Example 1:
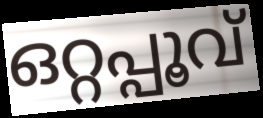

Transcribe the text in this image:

ഒറ്റപ്പൂവ്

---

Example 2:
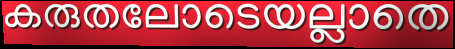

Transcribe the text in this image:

കരുതലോടെയല്ലാതെ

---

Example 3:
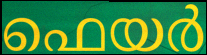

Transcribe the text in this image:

ഫെയർ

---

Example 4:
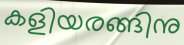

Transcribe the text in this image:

കളിയരങ്ങിനു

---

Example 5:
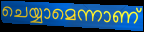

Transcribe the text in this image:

ചെയ്യാമെന്നാണ്